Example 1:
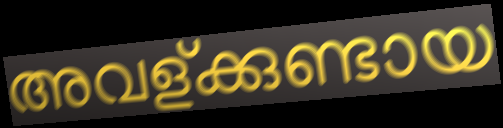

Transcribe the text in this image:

അവള്ക്കുണ്ടായ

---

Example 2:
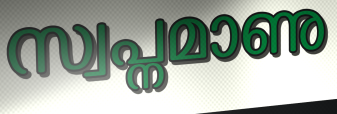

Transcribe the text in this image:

സ്വപ്നമാണു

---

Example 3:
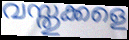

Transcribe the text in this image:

വസ്തുക്കളെ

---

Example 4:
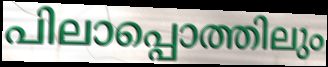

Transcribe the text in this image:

പിലാപ്പൊത്തിലും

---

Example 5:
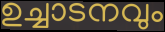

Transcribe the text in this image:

ഉച്ചാടനവും